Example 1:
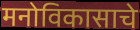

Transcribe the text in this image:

मनोविकासाचे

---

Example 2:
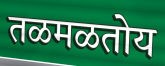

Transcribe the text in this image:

तळमळतोय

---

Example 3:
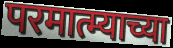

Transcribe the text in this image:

परमात्म्याच्या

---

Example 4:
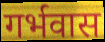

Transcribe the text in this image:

गर्भवास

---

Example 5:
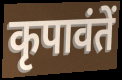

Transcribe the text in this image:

कृपावंतें